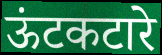
ऊंटकटारे